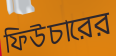
ফিউচারের